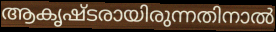
ആകൃഷ്ടരായിരുന്നതിനാൽ